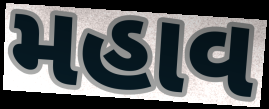
મહાવ